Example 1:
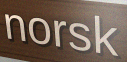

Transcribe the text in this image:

norsk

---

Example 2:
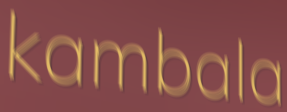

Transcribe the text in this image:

kambala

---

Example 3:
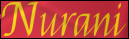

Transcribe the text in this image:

Nurani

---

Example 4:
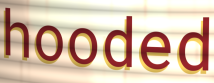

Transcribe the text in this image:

hooded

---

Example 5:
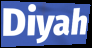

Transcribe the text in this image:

Diyah